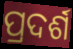
ପ୍ରଦର୍ଶ